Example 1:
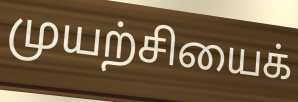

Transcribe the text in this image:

முயற்சியைக்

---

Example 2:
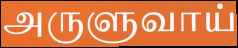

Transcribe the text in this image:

அருளுவாய்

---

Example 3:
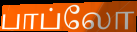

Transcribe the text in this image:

பாப்லோ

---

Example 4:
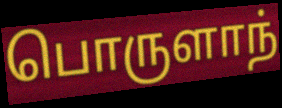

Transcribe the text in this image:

பொருளாந்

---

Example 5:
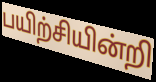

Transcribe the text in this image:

பயிற்சியின்றி